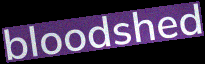
bloodshed